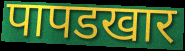
पापडखार